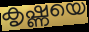
കൃഷ്ണയെ